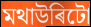
মথাউৰিটো